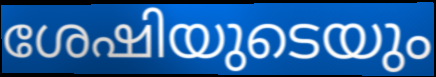
ശേഷിയുടെയും